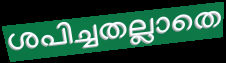
ശപിച്ചതല്ലാതെ